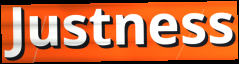
Justness